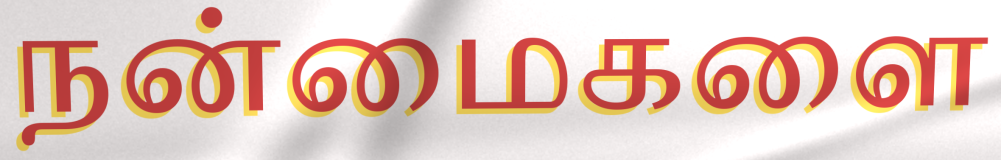
நன்மைகளை